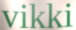
vikki